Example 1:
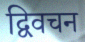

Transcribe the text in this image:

द्विवचन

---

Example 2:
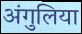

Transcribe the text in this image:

अंगुलिया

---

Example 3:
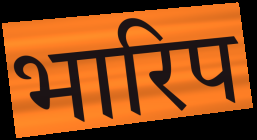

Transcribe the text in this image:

भारिप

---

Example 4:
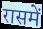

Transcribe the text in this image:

रासमें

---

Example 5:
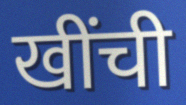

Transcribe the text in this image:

खींची